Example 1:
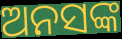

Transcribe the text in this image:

ଅନସଙ୍କ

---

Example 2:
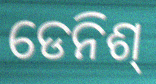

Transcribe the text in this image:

ଡେନିଶ୍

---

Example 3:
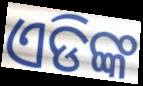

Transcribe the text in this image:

ଏଡିଙ୍କ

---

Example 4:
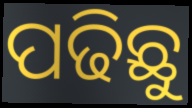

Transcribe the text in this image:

ପଢିଛୁ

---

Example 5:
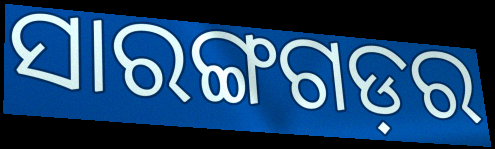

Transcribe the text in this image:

ସାରଙ୍ଗଗଡ଼ର